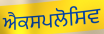
ਐਕਸਪਲੋਸਿਵ